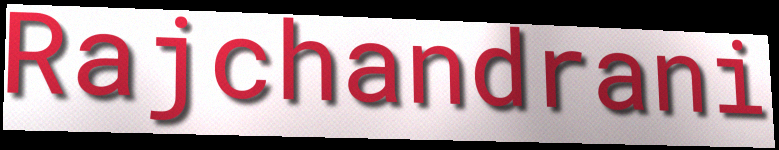
Rajchandrani